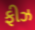
ફીઝ